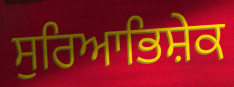
ਸੁਰਿਆਭਿਸ਼ੇਕ